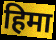
हिमा